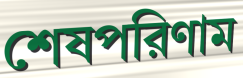
শেষপরিণাম